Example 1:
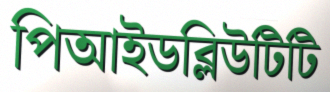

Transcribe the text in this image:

পিআইডব্লিউটিটি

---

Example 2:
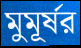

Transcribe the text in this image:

মুমূর্ষর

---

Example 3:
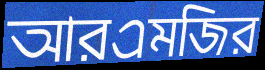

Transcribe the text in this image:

আরএমজির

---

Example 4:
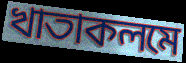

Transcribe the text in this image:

খাতাকলমে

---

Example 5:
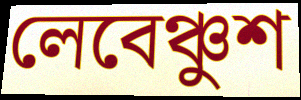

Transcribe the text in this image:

লেবেঞ্চুশ